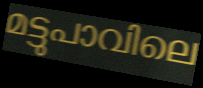
മട്ടുപാവിലെ